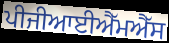
ਪੀਜੀਆਈਐੱਮਐੱਸ